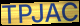
TPJAC